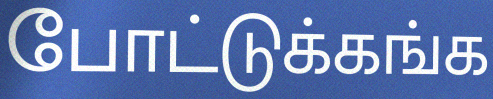
போட்டுக்கங்க